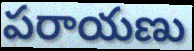
పరాయణు